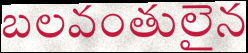
బలవంతులైన